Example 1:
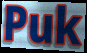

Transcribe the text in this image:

Puk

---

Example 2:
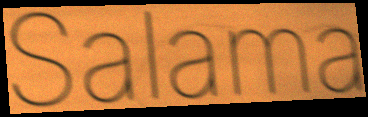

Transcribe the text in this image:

Salama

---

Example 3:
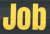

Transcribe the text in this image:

Job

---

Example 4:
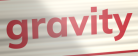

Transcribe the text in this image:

gravity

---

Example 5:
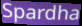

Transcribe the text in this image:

Spardha